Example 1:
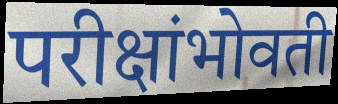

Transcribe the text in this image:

परीक्षांभोवती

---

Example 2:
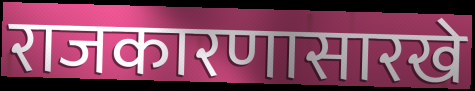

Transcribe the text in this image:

राजकारणासारखे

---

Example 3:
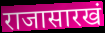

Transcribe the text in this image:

राजासारखं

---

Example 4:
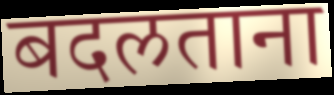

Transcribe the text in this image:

बदलताना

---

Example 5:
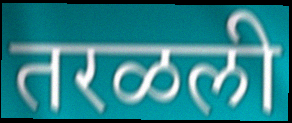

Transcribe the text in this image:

तरळली